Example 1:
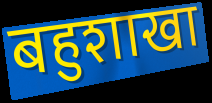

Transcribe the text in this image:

बहुशाखा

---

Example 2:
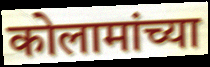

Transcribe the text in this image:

कोलामांच्या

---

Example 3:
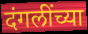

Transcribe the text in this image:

दंगलींच्या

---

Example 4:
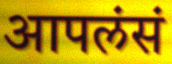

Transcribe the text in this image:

आपलंसं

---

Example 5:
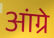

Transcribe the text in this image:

आंग्रे